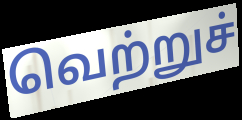
வெற்றுச்